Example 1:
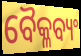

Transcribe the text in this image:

ବୈକ୍ଳବ୍ୟଂ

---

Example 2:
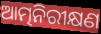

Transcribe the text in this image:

ଆତ୍ମନିରୀକ୍ଷଣ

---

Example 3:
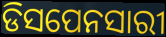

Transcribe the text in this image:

ଡିସପେନସାରୀ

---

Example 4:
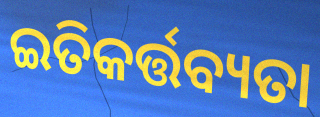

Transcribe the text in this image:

ଇତିକର୍ତ୍ତବ୍ୟତା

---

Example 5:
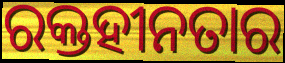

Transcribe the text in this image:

ରକ୍ତହୀନତାର